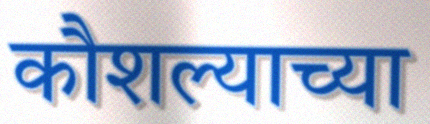
कौशल्याच्या